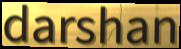
darshan